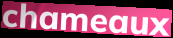
chameaux